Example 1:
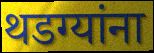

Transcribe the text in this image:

थडग्यांना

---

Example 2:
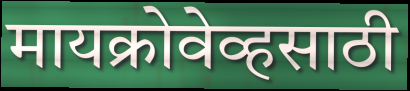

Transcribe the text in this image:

मायक्रोवेव्हसाठी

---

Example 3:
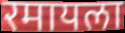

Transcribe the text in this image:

रमायला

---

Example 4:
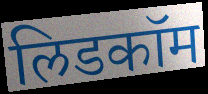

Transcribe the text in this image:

लिडकॉम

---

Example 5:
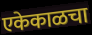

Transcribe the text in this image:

एकेकाळचा